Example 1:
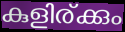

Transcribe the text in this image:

കുളിര്ക്കും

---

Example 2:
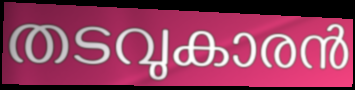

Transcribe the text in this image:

തടവുകാരൻ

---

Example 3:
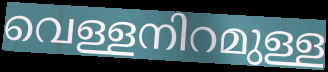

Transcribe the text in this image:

വെള്ളനിറമുള്ള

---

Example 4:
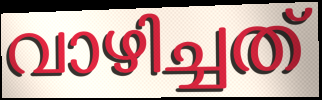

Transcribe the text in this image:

വാഴിച്ചത്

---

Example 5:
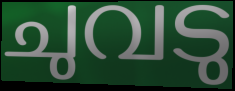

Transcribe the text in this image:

ചുവടു